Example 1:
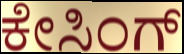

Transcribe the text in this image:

ಕೇಸಿಂಗ್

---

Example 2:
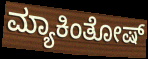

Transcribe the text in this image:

ಮ್ಯಾಕಿಂತೋಷ್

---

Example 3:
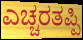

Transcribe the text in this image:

ಎಚ್ಚರತಪ್ಪಿ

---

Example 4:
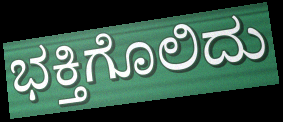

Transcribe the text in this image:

ಭಕ್ತಿಗೊಲಿದು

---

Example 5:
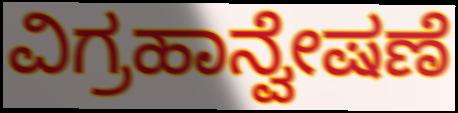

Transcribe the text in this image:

ವಿಗ್ರಹಾನ್ವೇಷಣೆ